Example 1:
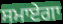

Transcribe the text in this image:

ਸਮਾਏਗਾ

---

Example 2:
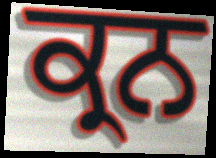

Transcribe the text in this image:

ਕ੍ਰਨ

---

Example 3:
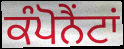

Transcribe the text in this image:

ਕੰਪੋਨੈਂਟਾਂ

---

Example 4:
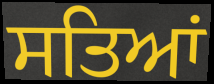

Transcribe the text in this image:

ਸਤਿਆਂ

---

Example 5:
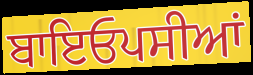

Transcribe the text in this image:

ਬਾਇਓਪਸੀਆਂ